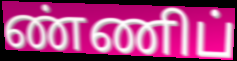
ண்ணிப்